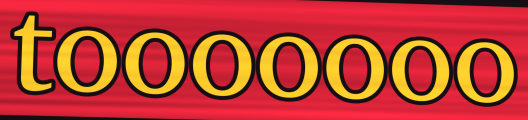
tooooooo